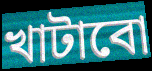
খাটাবো